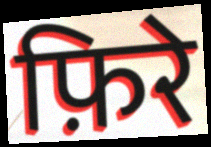
फ़िरे